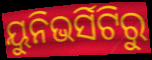
ୟୁନିଭର୍ସିଟିରୁ